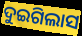
ଦୁଇଗିଲାସ